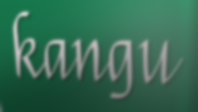
kangu